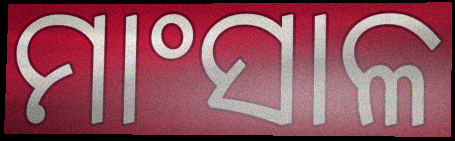
ମାଂସାଳ